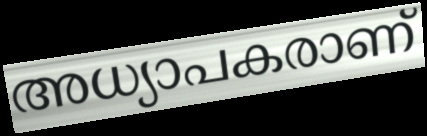
അധ്യാപകരാണ്